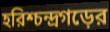
হরিশ্চন্দ্রগড়ের